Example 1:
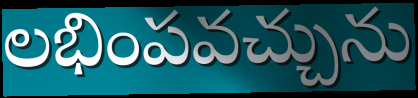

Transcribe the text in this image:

లభింపవచ్చును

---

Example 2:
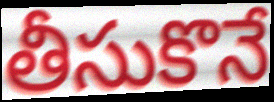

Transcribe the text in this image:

తీసుకొనే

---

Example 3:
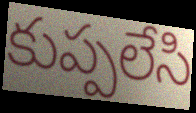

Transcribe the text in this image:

కుప్పలేసి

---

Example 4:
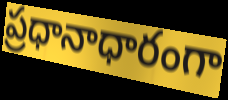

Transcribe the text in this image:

ప్రధానాధారంగా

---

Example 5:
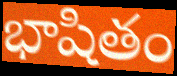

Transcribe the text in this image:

భాషితం